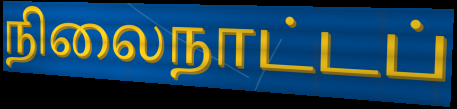
நிலைநாட்டப்